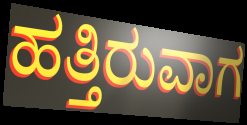
ಹತ್ತಿರುವಾಗ